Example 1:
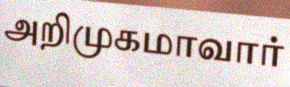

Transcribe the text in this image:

அறிமுகமாவார்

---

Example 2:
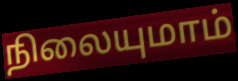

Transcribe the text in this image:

நிலையுமாம்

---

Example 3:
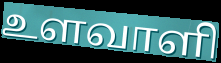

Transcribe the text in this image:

உளவாளி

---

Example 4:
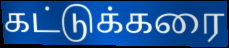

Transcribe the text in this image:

கட்டுக்கரை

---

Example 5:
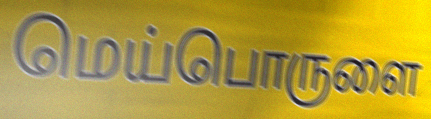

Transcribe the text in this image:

மெய்பொருளை